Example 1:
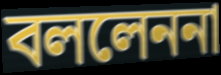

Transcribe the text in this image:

বললেননা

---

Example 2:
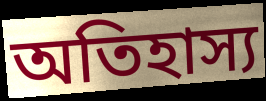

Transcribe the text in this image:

অতিহাস্য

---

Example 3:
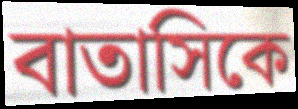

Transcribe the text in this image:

বাতাসিকে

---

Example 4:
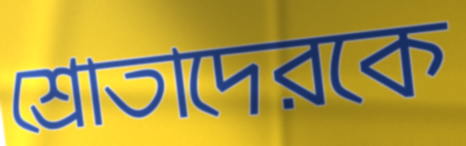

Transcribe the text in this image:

শ্রোতাদেরকে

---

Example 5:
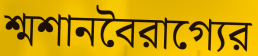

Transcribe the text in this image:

শ্মশানবৈরাগ্যের